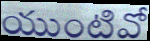
యుంటివో